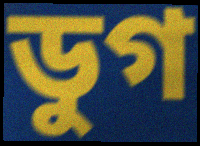
ডুগ